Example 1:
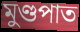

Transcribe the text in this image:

মুণ্ডপাত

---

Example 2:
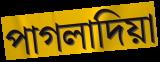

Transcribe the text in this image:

পাগলাদিয়া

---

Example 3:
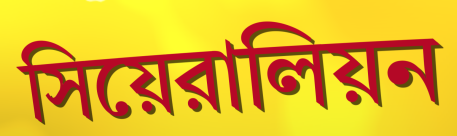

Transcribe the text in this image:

সিয়েরালিয়ন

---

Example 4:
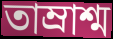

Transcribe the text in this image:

তাম্রাশ্ম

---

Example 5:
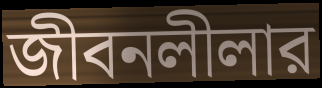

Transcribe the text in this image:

জীবনলীলার